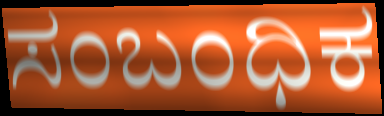
ಸಂಬಂಧಿಕ